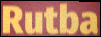
Rutba